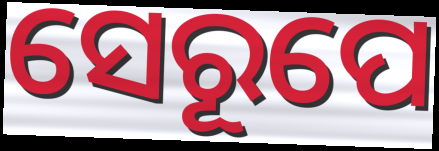
ସେରୂପେ